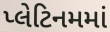
પ્લેટિનમમાં